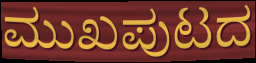
ಮುಖಪುಟದ